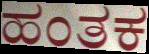
ಹಂತಕ